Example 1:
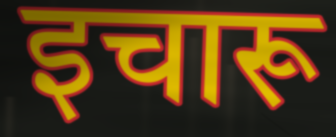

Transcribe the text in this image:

इचारू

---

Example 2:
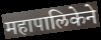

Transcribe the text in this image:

महापालिकेने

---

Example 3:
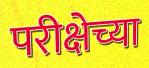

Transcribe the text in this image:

परीक्षेच्या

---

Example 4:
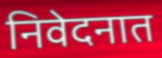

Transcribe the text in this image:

निवेदनात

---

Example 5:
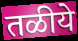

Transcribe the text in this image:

तळीये